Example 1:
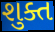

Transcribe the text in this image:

શુક્ત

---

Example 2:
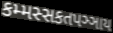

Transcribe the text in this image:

કમ્મસ્સકતપઞ્ઞાય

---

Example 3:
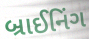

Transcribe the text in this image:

બ્રાઈનિંગ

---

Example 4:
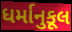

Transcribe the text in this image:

ધર્માનુકૂલ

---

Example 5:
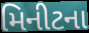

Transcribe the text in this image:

મિનીટના